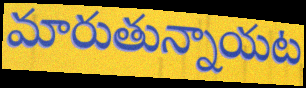
మారుతున్నాయట